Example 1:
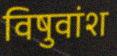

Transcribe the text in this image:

विषुवांश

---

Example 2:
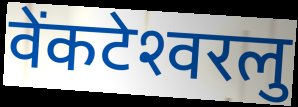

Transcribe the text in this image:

वेंकटेश्वरलु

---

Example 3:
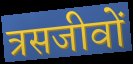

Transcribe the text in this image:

त्रसजीवों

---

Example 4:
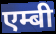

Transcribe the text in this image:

एम्बी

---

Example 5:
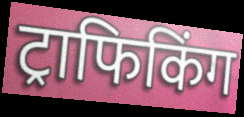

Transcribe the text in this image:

ट्राफिकिंग